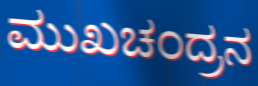
ಮುಖಚಂದ್ರನ